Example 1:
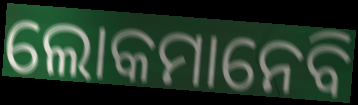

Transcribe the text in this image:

ଲୋକମାନେବି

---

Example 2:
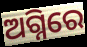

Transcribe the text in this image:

ଅଗ୍ନିରେ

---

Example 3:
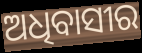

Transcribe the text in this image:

ଅଧିବାସୀର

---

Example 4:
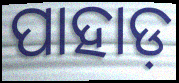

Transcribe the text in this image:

ପାହାଡ଼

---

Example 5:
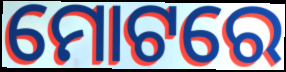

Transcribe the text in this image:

ମୋଟରେ